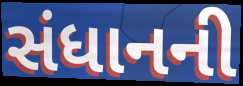
સંધાનની